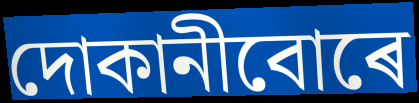
দোকানীবোৰে